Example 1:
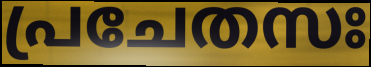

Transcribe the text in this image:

പ്രചേതസഃ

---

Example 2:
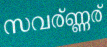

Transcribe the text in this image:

സവര്ണ്ണര്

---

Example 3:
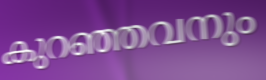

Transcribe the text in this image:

കുറഞ്ഞവനും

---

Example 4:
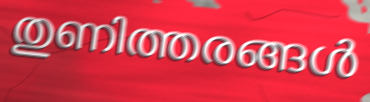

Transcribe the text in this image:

തുണിത്തരങ്ങൾ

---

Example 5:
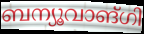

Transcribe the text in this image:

ബന്യൂവാങ്ഗി